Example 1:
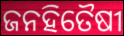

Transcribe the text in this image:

ଜନହିତୈଷୀ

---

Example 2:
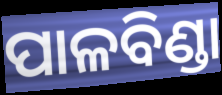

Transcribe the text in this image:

ପାଳବିଣ୍ଡା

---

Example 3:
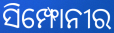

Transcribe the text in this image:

ସିମ୍ଫୋନୀର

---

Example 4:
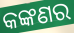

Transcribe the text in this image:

କଙ୍କଣର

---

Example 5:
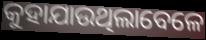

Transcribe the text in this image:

କୁହାଯାଉଥିଲାବେଳେ